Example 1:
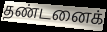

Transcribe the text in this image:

தண்டனைக்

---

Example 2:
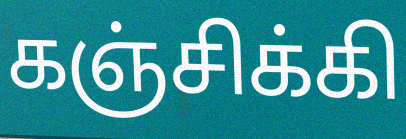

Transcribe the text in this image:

கஞ்சிக்கி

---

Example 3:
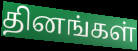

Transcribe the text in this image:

தினங்கள்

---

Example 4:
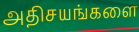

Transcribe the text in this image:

அதிசயங்களை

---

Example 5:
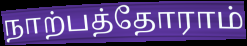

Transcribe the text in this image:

நாற்பத்தோராம்